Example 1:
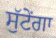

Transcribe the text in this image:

ਸੁੱਟੇਂਗਾ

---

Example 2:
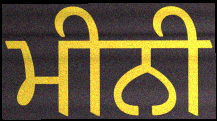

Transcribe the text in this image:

ਮੀਨੀ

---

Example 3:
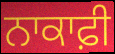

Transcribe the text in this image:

ਨਾਕਾਫ਼ੀ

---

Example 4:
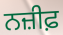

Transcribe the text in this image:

ਨਜ਼ੀਫ਼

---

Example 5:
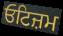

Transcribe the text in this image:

ਓਟਿਜ਼ਮ